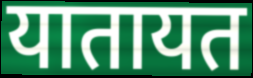
यातायत